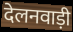
देलनवाड़ी